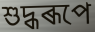
শুদ্ধৰূপে